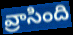
వ్రాసింది